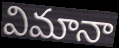
విమానా